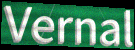
Vernal